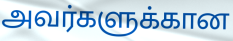
அவர்களுக்கான